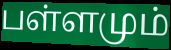
பள்ளமும்